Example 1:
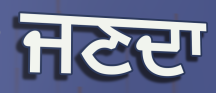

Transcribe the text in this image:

ਜਣਦਾ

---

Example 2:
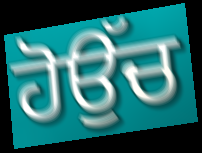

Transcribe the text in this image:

ਹੋਉੱਚ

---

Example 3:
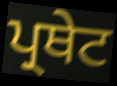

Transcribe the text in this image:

ਪ੍ਰਥੇਟ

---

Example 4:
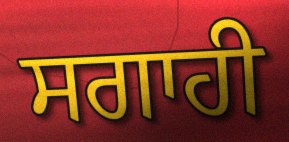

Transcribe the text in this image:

ਸਗਾਹੀ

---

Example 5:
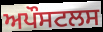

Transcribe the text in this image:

ਅਪੌਸਟਲਸ